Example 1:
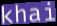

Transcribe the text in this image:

khai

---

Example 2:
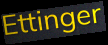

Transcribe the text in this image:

Ettinger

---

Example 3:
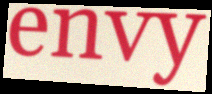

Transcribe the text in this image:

envy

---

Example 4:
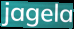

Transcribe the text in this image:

jagela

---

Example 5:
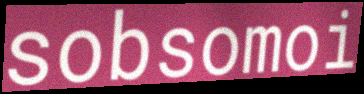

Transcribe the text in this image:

sobsomoi